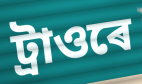
ট্ৰাওৰে